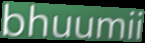
bhuumii